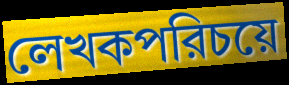
লেখকপরিচয়ে